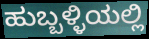
ಹುಬ್ಬಳ್ಳಿಯಲ್ಲಿ